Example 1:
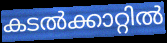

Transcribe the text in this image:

കടൽക്കാറ്റിൽ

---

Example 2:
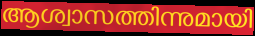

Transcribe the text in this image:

ആശ്വാസത്തിന്നുമായി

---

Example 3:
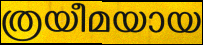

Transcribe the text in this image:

ത്രയീമയായ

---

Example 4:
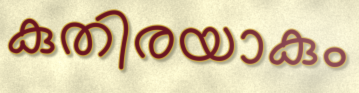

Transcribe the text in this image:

കുതിരയാകും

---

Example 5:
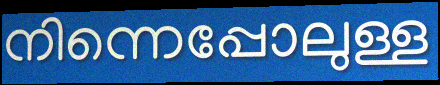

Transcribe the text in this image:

നിന്നെപ്പോലുള്ള